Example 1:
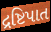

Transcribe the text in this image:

દ્રષ્ટિપાત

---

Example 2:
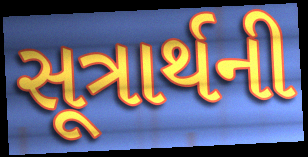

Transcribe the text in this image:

સૂત્રાર્થની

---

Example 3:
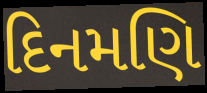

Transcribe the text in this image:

દિનમણિ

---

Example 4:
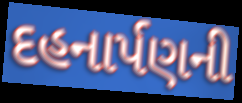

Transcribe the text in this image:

દહનાર્પણની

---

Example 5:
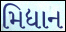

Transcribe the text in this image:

મિદ્યાન